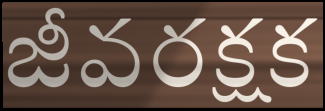
జీవరక్షక